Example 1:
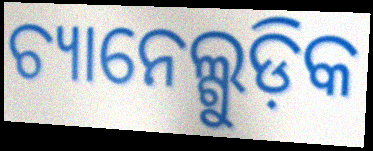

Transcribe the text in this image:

ଚ୍ୟାନେଲ୍ଗୁଡ଼ିକ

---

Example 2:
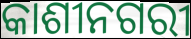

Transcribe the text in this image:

କାଶୀନଗରୀ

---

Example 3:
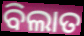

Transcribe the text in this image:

ବିଲାତ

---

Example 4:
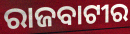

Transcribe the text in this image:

ରାଜବାଟୀର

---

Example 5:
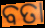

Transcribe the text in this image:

ବତା